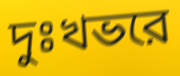
দুঃখভরে